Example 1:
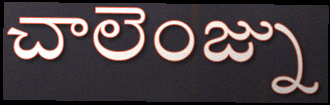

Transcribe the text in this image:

చాలెంజ్ను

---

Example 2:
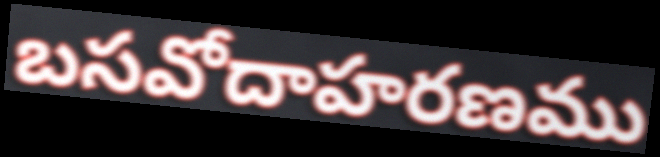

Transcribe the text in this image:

బసవోదాహరణము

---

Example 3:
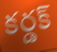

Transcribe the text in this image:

కర్డక్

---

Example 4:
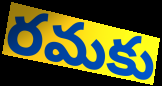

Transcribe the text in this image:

రమకు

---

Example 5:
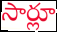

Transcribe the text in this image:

సార్లూ